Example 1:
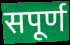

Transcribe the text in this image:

सपूर्ण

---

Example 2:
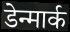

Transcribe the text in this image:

डेन्मार्क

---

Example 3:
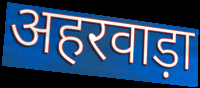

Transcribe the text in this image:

अहरवाड़ा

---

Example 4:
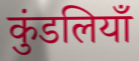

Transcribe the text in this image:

कुंडलियाँ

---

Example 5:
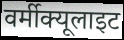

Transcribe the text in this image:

वर्मीक्यूलाइट